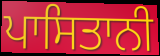
ਪਾਸਿਤਾਨੀ